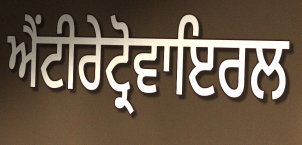
ਐਂਟੀਰੇਟ੍ਰੋਵਾਇਰਲ